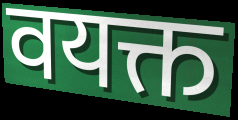
वयक्त